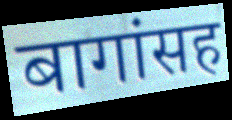
बागांसह